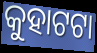
କୁହାଟଟା